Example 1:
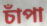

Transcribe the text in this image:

চাঁপা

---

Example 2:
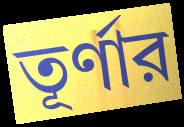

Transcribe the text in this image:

তূর্ণার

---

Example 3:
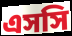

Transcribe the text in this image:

এসসি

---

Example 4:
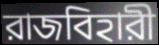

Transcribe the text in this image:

রাজবিহারী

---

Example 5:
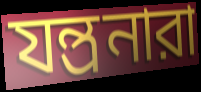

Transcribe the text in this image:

যন্ত্রনারা